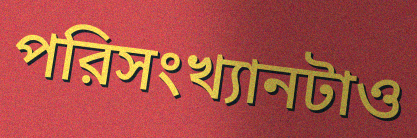
পরিসংখ্যানটাও